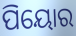
ପିୟୋର